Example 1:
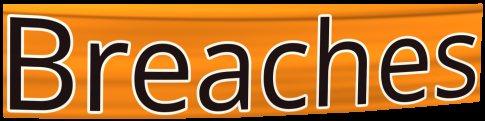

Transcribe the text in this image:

Breaches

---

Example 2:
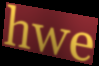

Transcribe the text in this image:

hwe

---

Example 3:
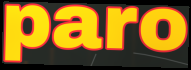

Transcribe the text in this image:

paro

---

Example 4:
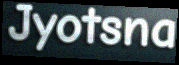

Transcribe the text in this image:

Jyotsna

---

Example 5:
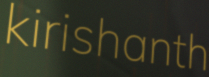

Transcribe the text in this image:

kirishanth